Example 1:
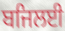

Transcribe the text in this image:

ਬਜਿਲਈ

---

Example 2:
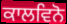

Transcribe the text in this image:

ਕਾਲਵਿਨੋ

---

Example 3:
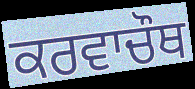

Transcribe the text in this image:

ਕਰਵਾਚੌਥ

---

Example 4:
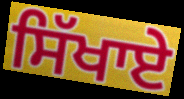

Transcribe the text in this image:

ਸਿੱਖਾਏ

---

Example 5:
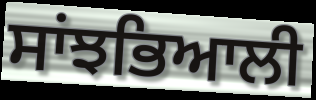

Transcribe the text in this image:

ਸਾਂਝਭਿਆਲੀ